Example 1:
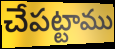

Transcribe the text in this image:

చేపట్టాము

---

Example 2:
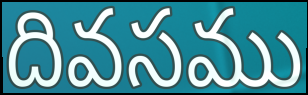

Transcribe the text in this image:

దివసము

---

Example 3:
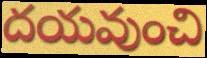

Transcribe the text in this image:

దయవుంచి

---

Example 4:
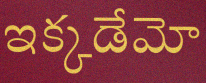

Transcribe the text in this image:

ఇక్కడేమో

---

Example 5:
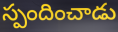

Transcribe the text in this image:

స్పందించాడు